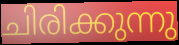
ചിരിക്കുന്നു